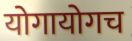
योगायोगच